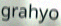
grahyo